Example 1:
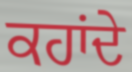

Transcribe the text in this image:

ਕਹਾਂਦੇ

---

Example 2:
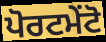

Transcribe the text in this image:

ਪੋਰਟਮੇਂਟੋ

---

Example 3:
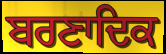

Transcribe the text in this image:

ਬਰਣਾਦਿਕ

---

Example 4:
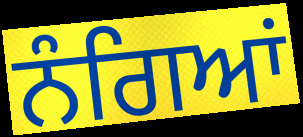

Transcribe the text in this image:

ਨੰਗਿਆਂ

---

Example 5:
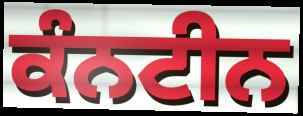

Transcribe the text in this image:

ਕੰਨਟੀਨ